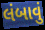
લંબાવું